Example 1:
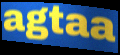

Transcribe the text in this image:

agtaa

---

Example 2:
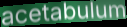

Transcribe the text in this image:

acetabulum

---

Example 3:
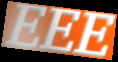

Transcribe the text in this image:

EEE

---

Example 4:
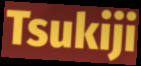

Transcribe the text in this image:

Tsukiji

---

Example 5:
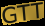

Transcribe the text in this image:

GTT